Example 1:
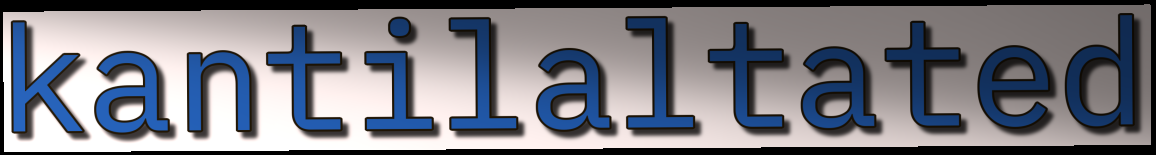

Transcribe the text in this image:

kantilaltated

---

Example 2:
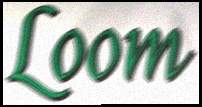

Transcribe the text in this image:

Loom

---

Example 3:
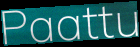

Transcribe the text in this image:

Paattu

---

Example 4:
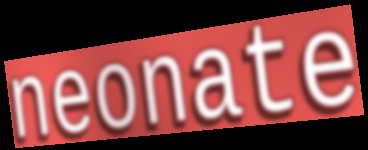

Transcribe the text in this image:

neonate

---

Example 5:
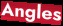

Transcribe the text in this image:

Angles